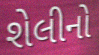
શેલીનો